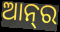
ଆନ୍‌ର